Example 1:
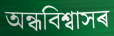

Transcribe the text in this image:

অন্ধবিশ্বাসৰ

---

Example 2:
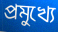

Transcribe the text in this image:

প্ৰমুখ্যে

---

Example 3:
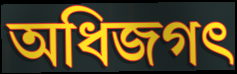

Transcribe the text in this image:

অধিজগৎ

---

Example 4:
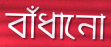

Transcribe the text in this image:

বাঁধানো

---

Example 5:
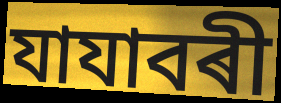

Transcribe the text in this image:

যাযাবৰী